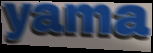
yama